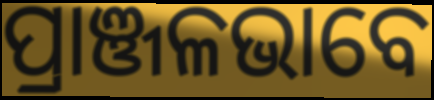
ପ୍ରାଞ୍ଜଳଭାବେ